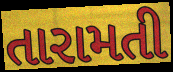
તારામતી